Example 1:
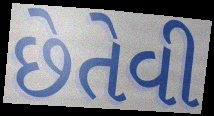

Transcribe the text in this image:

છેતેવી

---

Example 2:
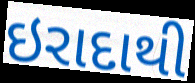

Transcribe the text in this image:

ઇરાદાથી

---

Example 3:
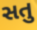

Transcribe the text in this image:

સતુ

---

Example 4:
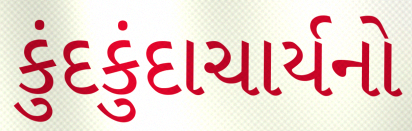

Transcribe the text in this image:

કુંદકુંદાચાર્યનો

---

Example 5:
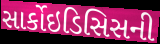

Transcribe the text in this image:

સાર્કોઇડિસિસની